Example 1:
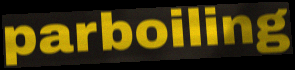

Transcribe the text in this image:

parboiling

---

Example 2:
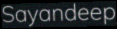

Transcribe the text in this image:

Sayandeep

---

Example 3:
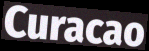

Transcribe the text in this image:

Curacao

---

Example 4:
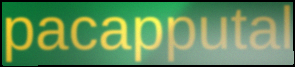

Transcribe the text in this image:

pacapputal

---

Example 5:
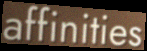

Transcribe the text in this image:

affinities